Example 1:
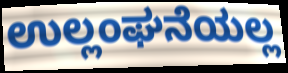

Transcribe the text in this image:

ಉಲ್ಲಂಘನೆಯಲ್ಲ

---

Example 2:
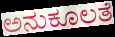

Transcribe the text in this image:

ಅನುಕೂಲತೆ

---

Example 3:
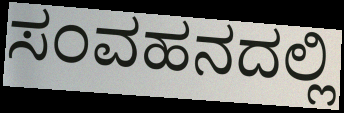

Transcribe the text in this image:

ಸಂವಹನದಲ್ಲಿ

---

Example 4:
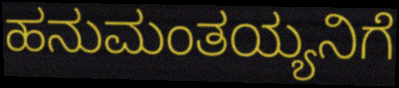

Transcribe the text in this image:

ಹನುಮಂತಯ್ಯನಿಗೆ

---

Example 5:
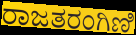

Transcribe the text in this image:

ರಾಜತರಂಗಿಣಿ